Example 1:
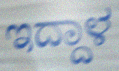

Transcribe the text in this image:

ಇದ್ದಾಳ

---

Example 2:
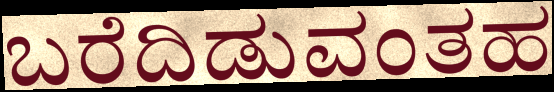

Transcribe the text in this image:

ಬರೆದಿಡುವಂತಹ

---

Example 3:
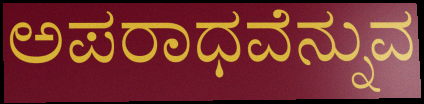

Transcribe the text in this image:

ಅಪರಾಧವೆನ್ನುವ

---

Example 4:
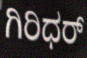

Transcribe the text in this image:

ಗಿರಿಧರ್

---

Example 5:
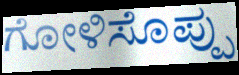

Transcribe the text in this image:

ಗೋಳಿಸೊಪ್ಪು